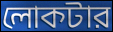
লোকটার